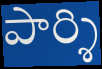
పార్శి